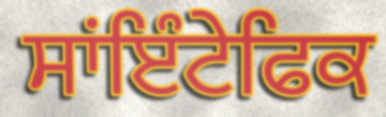
ਸਾਂਇੰਟੇਫਿਕ